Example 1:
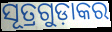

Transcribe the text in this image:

ସୂତ୍ରଗୁଡ଼ାକର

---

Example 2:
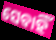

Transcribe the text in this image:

ସେବାହିଁ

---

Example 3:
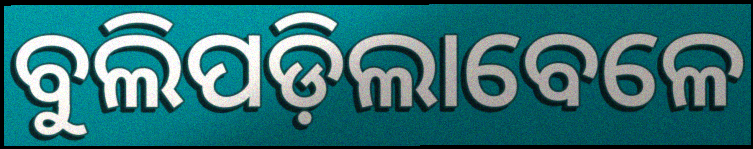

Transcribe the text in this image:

ବୁଲିପଡ଼ିଲାବେଳେ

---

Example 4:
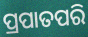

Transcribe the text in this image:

ପ୍ରପାତପରି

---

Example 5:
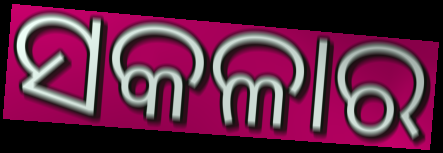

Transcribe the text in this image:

ସକଳାର